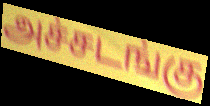
அச்சடங்கு